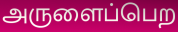
அருளைப்பெற